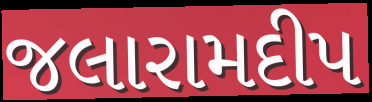
જલારામદીપ